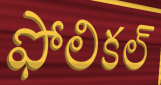
ఫోలికల్